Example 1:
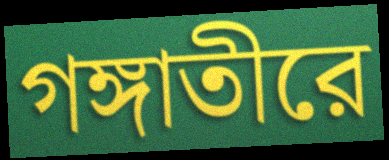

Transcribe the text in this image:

গঙ্গাতীরে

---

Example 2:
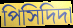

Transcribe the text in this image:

পিসিদিদা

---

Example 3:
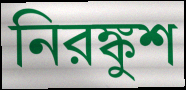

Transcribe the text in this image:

নিরঙ্কুশ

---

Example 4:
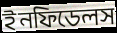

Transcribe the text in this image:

ইনফিডেলস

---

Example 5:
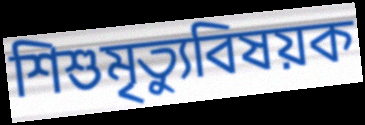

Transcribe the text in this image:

শিশুমৃত্যুবিষয়ক